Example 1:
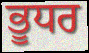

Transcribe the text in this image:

ਭੂਧਰ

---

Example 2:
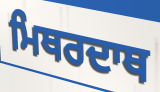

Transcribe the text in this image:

ਮਿਥਰਦਾਥ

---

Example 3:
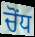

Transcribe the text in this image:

ਚੋਂਧ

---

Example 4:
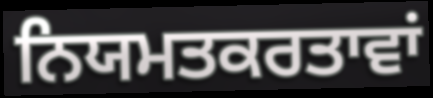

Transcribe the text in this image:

ਨਿਯਮਤਕਰਤਾਵਾਂ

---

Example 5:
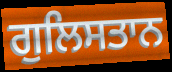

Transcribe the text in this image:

ਗੁਲਿਸਤਾਨ